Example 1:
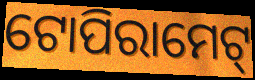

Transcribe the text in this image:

ଟୋପିରାମେଟ୍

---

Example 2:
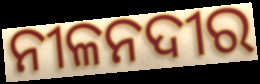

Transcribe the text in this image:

ନୀଳନଦୀର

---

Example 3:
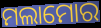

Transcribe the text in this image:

ମଲାମୋର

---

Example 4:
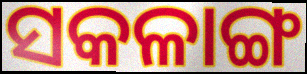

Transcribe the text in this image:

ସକଳାଙ୍ଗ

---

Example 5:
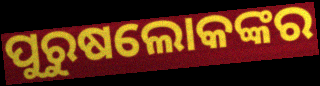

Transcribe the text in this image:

ପୁରୁଷଲୋକଙ୍କର